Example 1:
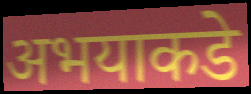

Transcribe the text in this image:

अभयाकडे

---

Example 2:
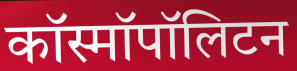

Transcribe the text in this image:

कॉस्मॉपॉलिटन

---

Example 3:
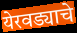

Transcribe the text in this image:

येरवड्याचे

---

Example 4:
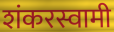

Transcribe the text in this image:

शंकरस्वामी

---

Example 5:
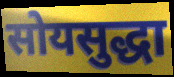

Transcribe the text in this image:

सोयसुद्धा